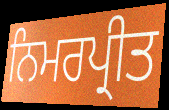
ਨਿਮਰਪ੍ਰੀਤ